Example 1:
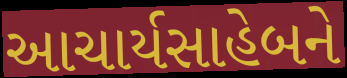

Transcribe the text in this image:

આચાર્યસાહેબને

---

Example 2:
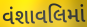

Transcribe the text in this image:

વંશાવલિમાં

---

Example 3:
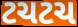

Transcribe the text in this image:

ટચટચ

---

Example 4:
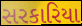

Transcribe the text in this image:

સરકારિયા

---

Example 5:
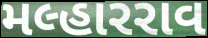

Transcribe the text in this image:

મલ્હારરાવ